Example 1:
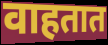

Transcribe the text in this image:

वाहतात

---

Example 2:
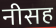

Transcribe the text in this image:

नीसह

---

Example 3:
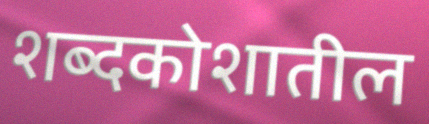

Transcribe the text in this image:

शब्दकोशातील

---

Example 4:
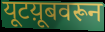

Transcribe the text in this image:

यूटय़ूबवरून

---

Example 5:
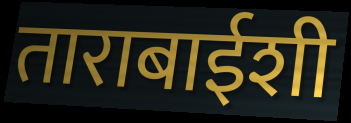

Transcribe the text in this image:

ताराबाईशी